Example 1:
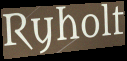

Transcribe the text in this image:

Ryholt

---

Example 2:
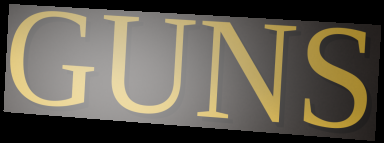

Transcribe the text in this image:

GUNS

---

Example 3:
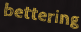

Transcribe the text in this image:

bettering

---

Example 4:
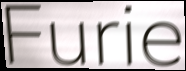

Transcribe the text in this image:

Furie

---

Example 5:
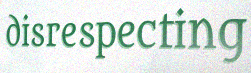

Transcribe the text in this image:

disrespecting